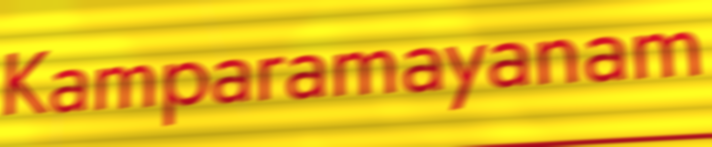
Kamparamayanam